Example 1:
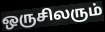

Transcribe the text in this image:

ஒருசிலரும்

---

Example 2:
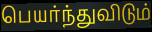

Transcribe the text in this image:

பெயர்ந்துவிடும்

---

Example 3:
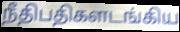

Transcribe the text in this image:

நீதிபதிகளடங்கிய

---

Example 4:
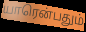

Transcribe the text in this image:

யாரென்பதும்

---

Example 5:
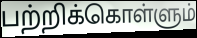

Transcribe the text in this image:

பற்றிக்கொள்ளும்